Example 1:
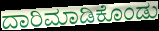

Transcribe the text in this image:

ದಾರಿಮಾಡಿಕೊಂಡು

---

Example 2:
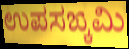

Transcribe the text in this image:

ಉಪಸಙ್ಕಮಿ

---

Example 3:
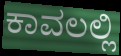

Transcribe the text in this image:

ಕಾವಲಲ್ಲಿ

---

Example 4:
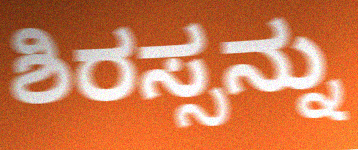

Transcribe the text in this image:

ಶಿರಸ್ಸನ್ನು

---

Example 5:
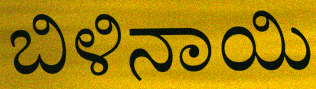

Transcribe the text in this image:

ಬಿಳಿನಾಯಿ